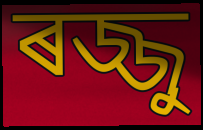
ৰজ্জু